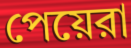
পেয়েরা